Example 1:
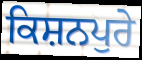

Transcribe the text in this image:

ਕਿਸ਼ਨਪੁਰੇ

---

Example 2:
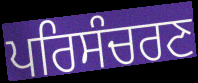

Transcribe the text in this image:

ਪਰਿਸੰਚਰਣ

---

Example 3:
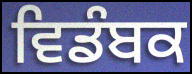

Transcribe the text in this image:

ਵਿਡੰਬਕ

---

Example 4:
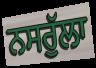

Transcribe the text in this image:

ਨਸਰੁੱਲਾ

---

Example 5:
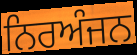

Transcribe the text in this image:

ਨਿਰਅੰਜਨ